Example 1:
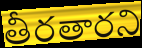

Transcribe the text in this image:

తీరతారని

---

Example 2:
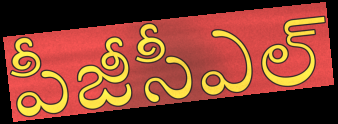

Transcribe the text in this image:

పీజీసీఎల్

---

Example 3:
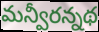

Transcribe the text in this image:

మన్వీరన్నథ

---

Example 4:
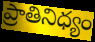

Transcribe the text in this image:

ప్రాతినిధ్యం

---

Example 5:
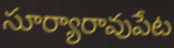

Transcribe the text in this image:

సూర్యారావుపేట